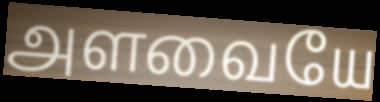
அளவையே